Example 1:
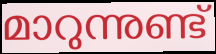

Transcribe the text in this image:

മാറുന്നുണ്ട്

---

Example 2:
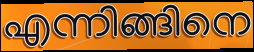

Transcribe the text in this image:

എന്നിങ്ങിനെ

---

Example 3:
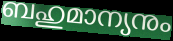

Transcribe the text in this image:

ബഹുമാന്യനും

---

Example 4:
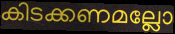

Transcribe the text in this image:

കിടക്കണമല്ലോ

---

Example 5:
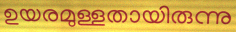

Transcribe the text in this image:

ഉയരമുള്ളതായിരുന്നു